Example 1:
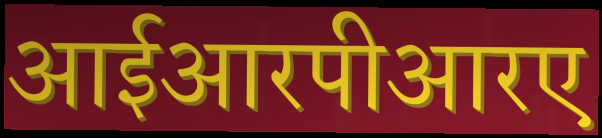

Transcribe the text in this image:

आईआरपीआरए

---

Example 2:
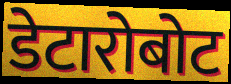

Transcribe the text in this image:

डेटारोबोट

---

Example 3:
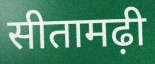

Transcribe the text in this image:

सीतामढ़ी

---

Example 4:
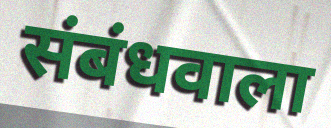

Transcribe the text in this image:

संबंधवाला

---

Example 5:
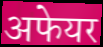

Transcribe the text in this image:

अफेयर